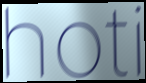
hoti